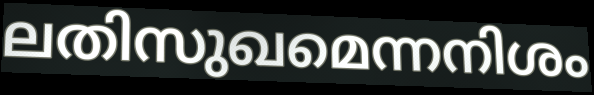
ലതിസുഖമെന്നനിശം